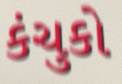
કંચુકો